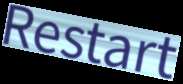
Restart